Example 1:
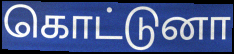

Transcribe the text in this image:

கொட்டுனா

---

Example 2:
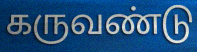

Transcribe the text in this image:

கருவண்டு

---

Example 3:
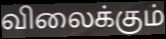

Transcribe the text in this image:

விலைக்கும்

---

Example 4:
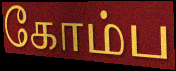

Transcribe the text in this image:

கோம்ப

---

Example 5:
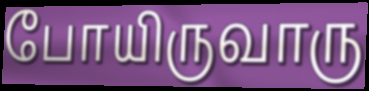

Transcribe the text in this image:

போயிருவாரு